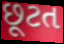
છૂટત